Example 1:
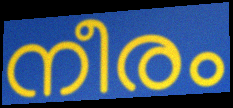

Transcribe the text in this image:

നീരം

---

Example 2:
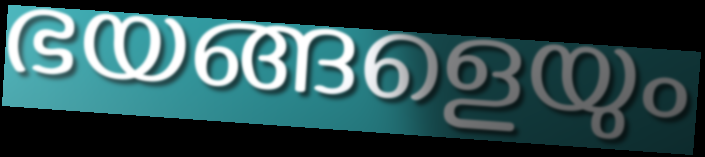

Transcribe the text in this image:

ഭയങ്ങളെയും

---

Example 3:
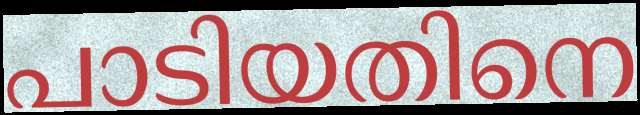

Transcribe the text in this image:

പാടിയതിനെ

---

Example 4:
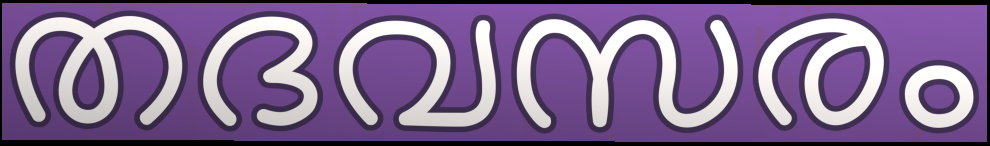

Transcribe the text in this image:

തദവസരം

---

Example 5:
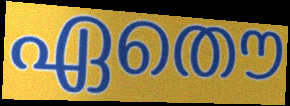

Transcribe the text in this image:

ഏതൌ